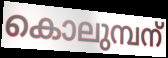
കൊലുമ്പന്